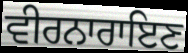
ਵੀਰਨਾਰਾਇਣ